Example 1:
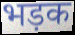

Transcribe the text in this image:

भड़क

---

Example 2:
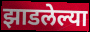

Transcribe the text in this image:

झाडलेल्या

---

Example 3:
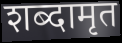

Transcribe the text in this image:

शब्दामृत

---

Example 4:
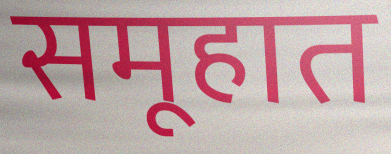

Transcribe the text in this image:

समूहात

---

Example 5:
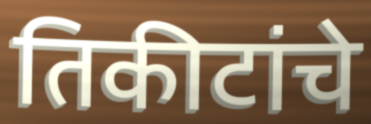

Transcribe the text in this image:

तिकीटांचे